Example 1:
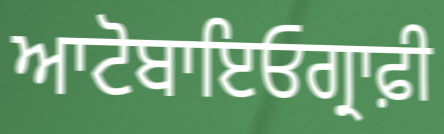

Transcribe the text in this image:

ਆਟੋਬਾਇਓਗ੍ਰਾਫ਼ੀ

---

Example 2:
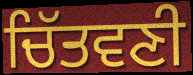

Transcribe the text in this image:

ਚਿੱਤਵਣੀ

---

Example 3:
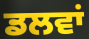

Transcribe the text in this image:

ਡਲਵਾਂ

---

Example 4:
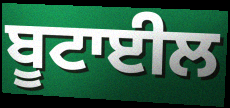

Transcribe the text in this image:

ਬੂਟਾਈਲ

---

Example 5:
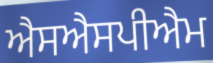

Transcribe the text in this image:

ਐਸਐਸਪੀਐਮ